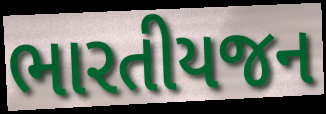
ભારતીયજન